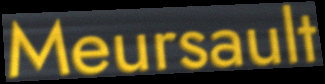
Meursault